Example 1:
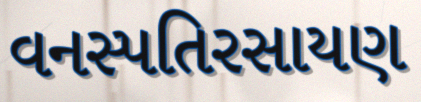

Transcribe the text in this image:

વનસ્પતિરસાયણ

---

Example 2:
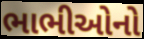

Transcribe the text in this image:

ભાભીઓનો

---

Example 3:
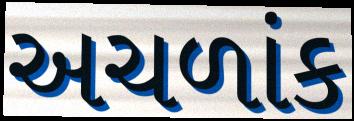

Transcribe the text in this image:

અચળાંક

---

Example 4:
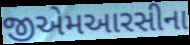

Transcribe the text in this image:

જીએમઆરસીના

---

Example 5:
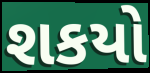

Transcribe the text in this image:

શકયો